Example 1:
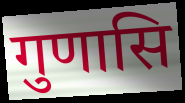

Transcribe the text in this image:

गुणासि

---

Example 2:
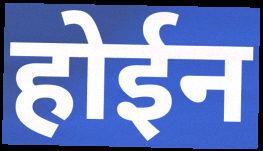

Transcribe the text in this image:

होईन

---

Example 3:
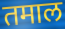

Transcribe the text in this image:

तमाल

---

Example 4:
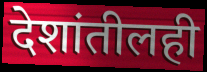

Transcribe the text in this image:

देशांतीलही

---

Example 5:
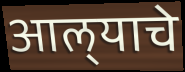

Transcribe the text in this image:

आल्याचे